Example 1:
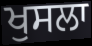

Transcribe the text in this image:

ਖੁਸਲਾ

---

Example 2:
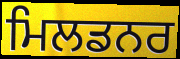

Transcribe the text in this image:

ਮਿਲਡਨਰ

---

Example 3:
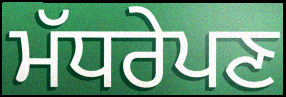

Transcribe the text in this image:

ਮੱਧਰੇਪਣ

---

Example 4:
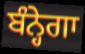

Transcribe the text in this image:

ਬੰਨ੍ਹੇਗਾ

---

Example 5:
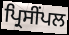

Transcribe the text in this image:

ਪ੍ਰਿਸੀਂਪਲ